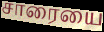
சாரையை